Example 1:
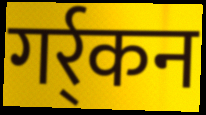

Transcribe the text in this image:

गर्र्कन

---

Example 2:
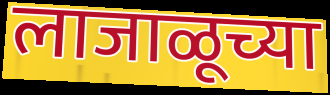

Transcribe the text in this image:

लाजाळूच्या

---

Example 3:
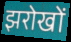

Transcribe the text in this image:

झरोखों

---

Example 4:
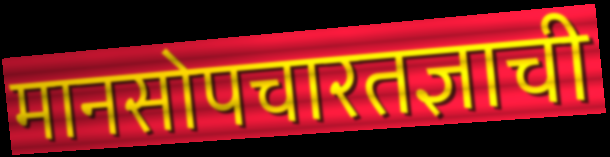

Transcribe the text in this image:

मानसोपचारतज्ञाची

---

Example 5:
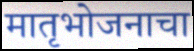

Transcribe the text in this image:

मातृभोजनाचा